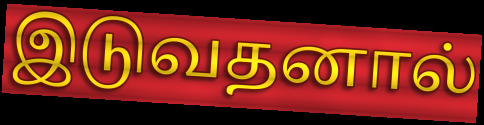
இடுவதனால்